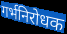
गर्भनिरोधक